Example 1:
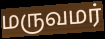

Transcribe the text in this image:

மருவமர்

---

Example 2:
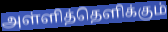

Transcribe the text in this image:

அள்ளித்தெளிக்கும்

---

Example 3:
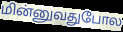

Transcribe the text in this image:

மின்னுவதுபோல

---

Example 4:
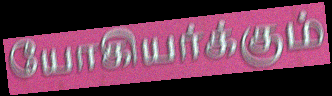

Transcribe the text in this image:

யோகியர்க்கும்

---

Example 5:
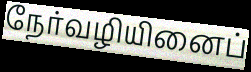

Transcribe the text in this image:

நேர்வழியினைப்